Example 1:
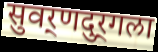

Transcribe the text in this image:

सुवर्णदुर्गला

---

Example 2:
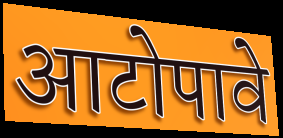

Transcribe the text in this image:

आटोपावे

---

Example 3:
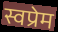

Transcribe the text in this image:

स्वप्रेम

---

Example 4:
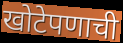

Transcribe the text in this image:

खोटेपणाची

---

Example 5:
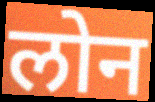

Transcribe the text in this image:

लोन